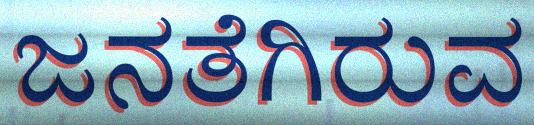
ಜನತೆಗಿರುವ